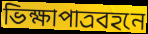
ভিক্ষাপাত্রবহনে